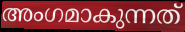
അംഗമാകുന്നത്